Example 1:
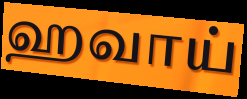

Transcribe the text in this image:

ஹவாய்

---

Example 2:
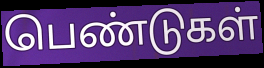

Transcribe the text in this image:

பெண்டுகள்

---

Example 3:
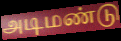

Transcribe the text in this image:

அடிமண்டு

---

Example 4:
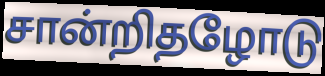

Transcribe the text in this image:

சான்றிதழோடு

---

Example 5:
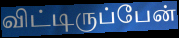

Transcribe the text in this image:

விட்டிருப்பேன்